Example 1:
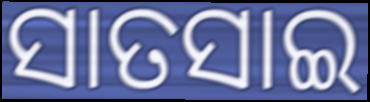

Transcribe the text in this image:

ସାତସାଇ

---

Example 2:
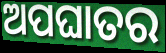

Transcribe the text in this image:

ଅପଘାତର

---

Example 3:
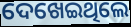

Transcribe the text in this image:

ଦେଖେଇଥିଲେ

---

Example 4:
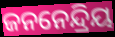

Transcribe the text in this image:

ଜନନେନ୍ଦ୍ରିୟ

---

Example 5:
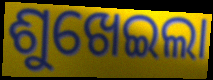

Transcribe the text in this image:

ଶୁଖେଇଲା